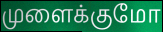
முளைக்குமோ